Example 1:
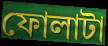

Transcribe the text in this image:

ফোলাটা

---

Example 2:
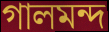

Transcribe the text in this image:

গালমন্দ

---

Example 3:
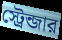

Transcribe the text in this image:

স্ট্রেন্জার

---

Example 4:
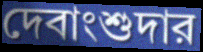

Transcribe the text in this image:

দেবাংশুদার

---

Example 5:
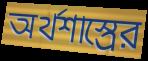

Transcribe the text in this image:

অর্থশাস্ত্রের